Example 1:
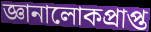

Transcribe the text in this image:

জ্ঞানালোকপ্রাপ্ত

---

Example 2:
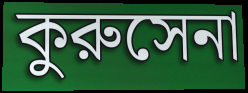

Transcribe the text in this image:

কুরুসেনা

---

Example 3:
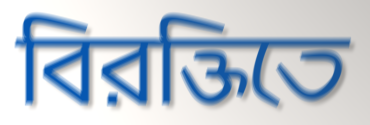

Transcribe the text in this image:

বিরক্তিতে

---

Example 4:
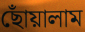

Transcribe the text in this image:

ছোঁয়ালাম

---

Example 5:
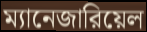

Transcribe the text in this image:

ম্যানেজারিয়েল